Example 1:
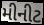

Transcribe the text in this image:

મીનીટ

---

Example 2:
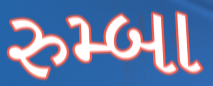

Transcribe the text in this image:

રુમ્બા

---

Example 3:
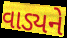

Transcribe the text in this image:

વાડ્યને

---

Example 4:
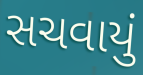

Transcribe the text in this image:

સચવાયું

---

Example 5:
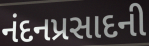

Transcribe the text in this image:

નંદનપ્રસાદની